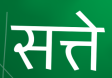
सत्ते